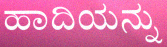
ಹಾದಿಯನ್ನು